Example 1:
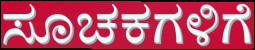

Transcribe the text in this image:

ಸೂಚಕಗಳಿಗೆ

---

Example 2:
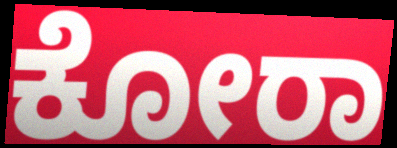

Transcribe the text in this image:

ಕೋರಾ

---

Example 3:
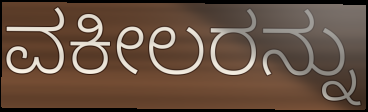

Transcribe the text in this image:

ವಕೀಲರನ್ನು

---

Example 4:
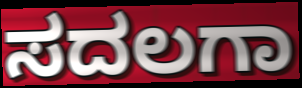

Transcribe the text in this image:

ಸದಲಗಾ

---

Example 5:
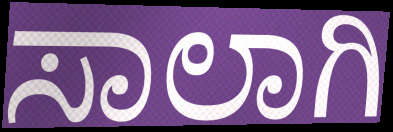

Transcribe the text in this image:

ಸಾಲಾಗಿ